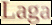
Laga